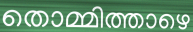
തൊമ്മിത്താഴെ